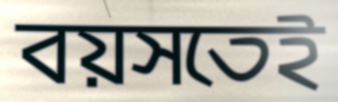
বয়সতেই